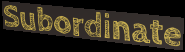
Subordinate